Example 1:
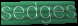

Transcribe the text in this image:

sedges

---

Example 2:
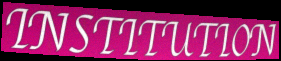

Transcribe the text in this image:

INSTITUTION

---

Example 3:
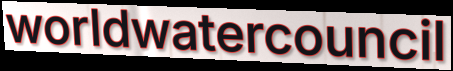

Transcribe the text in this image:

worldwatercouncil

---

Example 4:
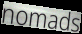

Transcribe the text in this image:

nomads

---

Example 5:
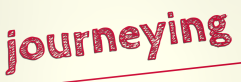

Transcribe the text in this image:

journeying